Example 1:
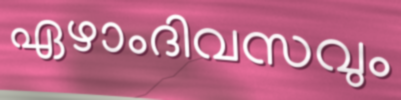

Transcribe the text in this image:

ഏഴാംദിവസവും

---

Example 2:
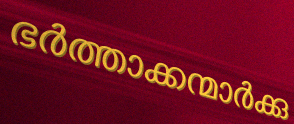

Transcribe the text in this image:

ഭർത്താക്കന്മാർക്കു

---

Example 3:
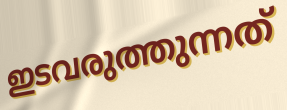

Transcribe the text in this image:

ഇടവരുത്തുന്നത്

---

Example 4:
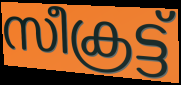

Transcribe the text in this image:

സീക്രട്ട്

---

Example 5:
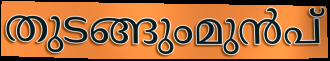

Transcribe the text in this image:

തുടങ്ങുംമുൻപ്